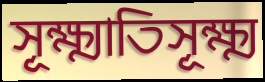
সূক্ষ্মাতিসূক্ষ্ম